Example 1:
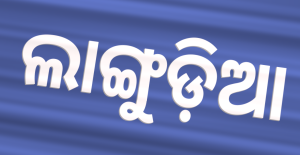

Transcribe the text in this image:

ଲାଙ୍ଗୁଡ଼ିଆ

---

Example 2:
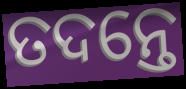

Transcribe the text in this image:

ତଦନ୍ତେ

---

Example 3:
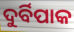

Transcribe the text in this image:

ଦୁର୍ବିପାକ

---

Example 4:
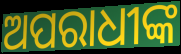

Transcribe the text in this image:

ଅପରାଧୀଙ୍କ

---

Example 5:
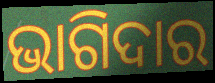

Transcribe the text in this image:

ଭାଗିଦାର